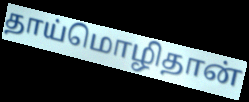
தாய்மொழிதான்